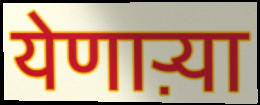
येणाऱ्‍या